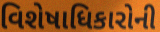
વિશેષાધિકારોની